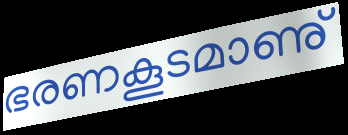
ഭരണകൂടമാണു്